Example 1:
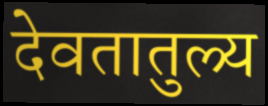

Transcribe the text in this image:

देवतातुल्य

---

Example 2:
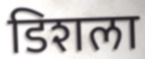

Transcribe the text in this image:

डिशला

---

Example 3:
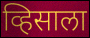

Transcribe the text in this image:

व्हिसाला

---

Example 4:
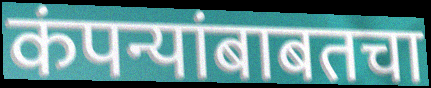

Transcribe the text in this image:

कंपन्यांबाबतचा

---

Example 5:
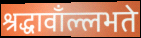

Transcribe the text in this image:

श्रद्धावाँल्लभते